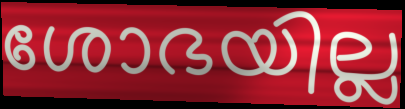
ശോഭയില്ല